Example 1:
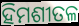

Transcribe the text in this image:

ହିମଶୀତଳ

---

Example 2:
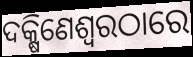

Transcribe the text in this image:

ଦକ୍ଷିଣେଶ୍ୱରଠାରେ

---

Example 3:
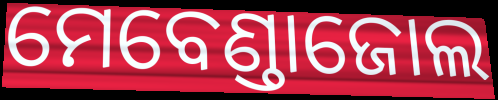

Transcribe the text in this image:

ମେବେଣ୍ଡାଜୋଲ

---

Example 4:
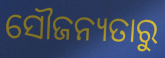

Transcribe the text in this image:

ସୌଜନ୍ୟତାରୁ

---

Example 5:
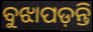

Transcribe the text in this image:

ବୁଝାପଡ଼ନ୍ତି